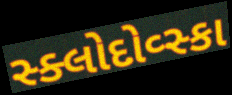
સ્ક્લોદોવ્સ્કા